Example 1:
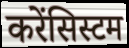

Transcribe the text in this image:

करेंसिस्टम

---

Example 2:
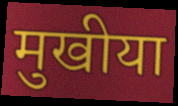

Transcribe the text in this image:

मुखीया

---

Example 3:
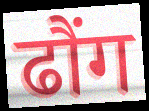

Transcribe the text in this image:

ढौंग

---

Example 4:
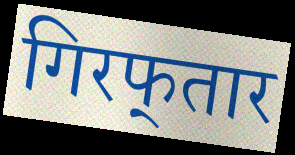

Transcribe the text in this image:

गिरफ्‌तार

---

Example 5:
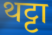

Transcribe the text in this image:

थट्टा